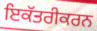
ਇਕੱਤਰੀਕਰਨ